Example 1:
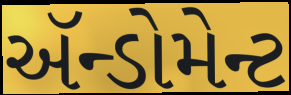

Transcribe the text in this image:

ઍન્ડોમેન્ટ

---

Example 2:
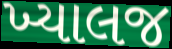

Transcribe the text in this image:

ખ્યાલજ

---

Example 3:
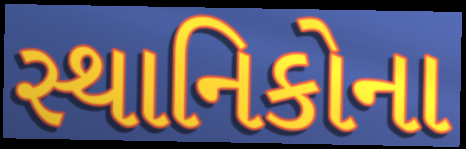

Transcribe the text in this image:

સ્થાનિકોના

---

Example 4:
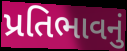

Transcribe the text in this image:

પ્રતિભાવનું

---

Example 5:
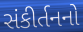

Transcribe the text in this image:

સંકીર્તનનો